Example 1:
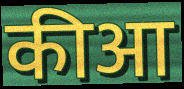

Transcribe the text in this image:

कीआ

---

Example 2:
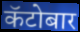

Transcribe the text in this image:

कॅटोबार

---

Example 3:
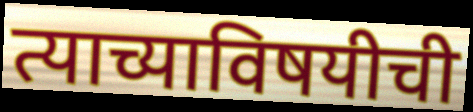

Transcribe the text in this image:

त्याच्याविषयीची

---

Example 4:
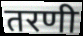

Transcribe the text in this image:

तरणी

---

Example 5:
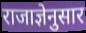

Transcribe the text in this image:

राजाज्ञेनुसार